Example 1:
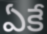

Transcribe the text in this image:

ఏకే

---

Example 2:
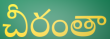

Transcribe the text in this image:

చీరంతా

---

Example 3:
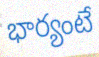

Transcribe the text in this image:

భార్యంటే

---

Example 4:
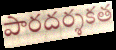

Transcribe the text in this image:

పారదర్శకత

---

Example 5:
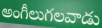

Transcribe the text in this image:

అంగీలుగలవాడు